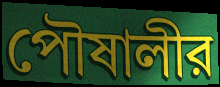
পৌষালীর